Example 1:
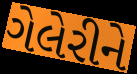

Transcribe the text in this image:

ગેલેરીને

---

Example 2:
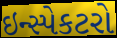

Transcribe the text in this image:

ઇન્સ્પેકટરો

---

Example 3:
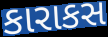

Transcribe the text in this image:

કારાકસ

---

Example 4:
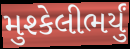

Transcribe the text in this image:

મુશ્કેલીભર્યું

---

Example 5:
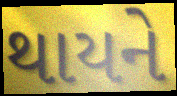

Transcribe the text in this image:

થાયને